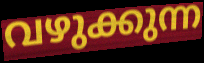
വഴുക്കുന്ന